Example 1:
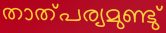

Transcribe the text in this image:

താത്പര്യമുണ്ടു്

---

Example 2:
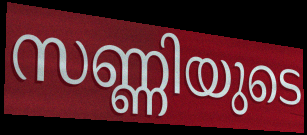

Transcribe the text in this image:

സണ്ണിയുടെ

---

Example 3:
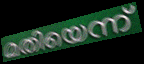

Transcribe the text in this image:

മതിയെന്ന്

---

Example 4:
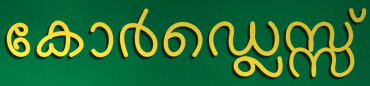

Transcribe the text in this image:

കോർഡ്ലെസ്സ്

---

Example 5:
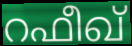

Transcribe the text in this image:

റഫീഖ്